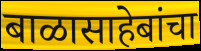
बाळासाहेबांचा